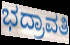
ಭದ್ರಾವತಿ